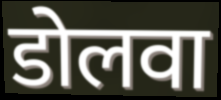
डोलवा